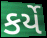
કર્યે